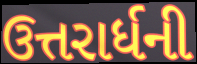
ઉત્તરાર્ધની